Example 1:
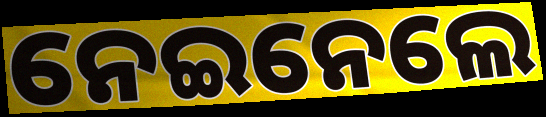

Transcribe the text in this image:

ନେଇନେଲେ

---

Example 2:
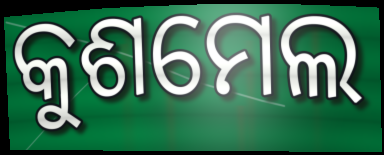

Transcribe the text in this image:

କୁଶମେଲ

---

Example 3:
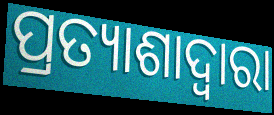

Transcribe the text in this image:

ପ୍ରତ୍ୟାଶାଦ୍ୱାରା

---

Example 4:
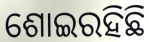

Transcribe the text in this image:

ଶୋଇରହିଛି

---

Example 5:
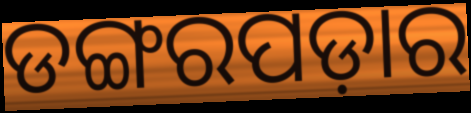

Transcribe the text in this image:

ଡଙ୍ଗରପଡ଼ାର